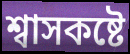
শ্বাসকষ্টে